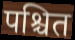
पश्चित